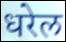
धरेल